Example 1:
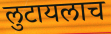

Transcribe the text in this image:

लुटायलाच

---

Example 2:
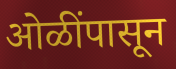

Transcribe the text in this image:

ओळींपासून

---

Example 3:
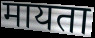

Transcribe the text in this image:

मायता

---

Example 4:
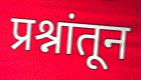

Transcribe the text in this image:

प्रश्नांतून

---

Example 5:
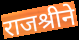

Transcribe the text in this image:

राजश्रीने